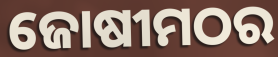
ଜୋଷୀମଠର